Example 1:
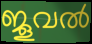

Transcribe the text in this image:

ജൂവൽ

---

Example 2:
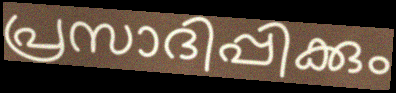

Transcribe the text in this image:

പ്രസാദിപ്പിക്കും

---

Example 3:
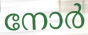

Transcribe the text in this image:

നോർ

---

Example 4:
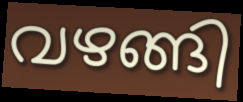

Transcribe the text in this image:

വഴങ്ങി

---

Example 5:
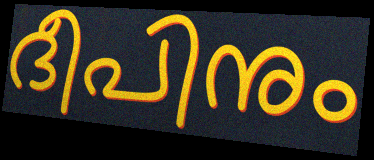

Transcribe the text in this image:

ദീപിനും